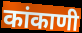
कांकाणी